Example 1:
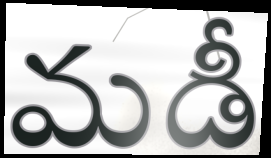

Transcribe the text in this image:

మడీ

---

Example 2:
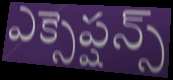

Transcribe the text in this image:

ఎక్సెప్షన్స్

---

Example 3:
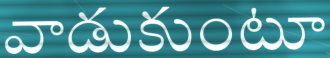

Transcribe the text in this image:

వాడుకుంటూ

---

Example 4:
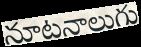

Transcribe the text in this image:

నూటనాలుగు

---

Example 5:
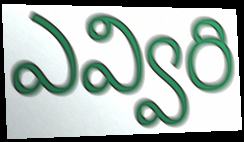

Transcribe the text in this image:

ఎవ్విరి